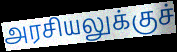
அரசியலுக்குச்